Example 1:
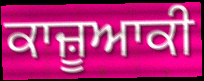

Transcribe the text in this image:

ਕਾਜ਼ੂਆਕੀ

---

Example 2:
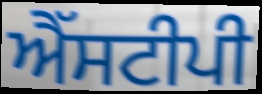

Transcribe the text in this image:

ਐੱਸਟੀਪੀ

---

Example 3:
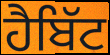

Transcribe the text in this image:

ਹੈਬਿੱਟ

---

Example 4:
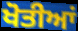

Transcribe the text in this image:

ਖੋਤੀਆਂ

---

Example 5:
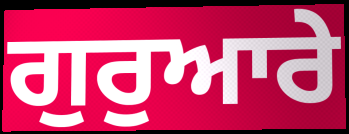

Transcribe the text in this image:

ਗੁਰੁਆਰੇ